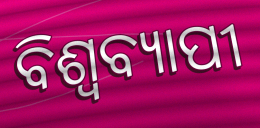
ବିଶ୍ୱବ୍ୟାପୀ